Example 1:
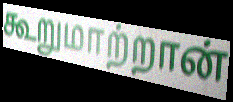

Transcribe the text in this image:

கூறுமாற்றான்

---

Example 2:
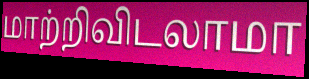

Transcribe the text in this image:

மாற்றிவிடலாமா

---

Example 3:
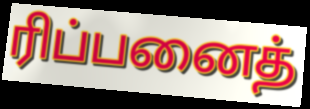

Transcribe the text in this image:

ரிப்பனைத்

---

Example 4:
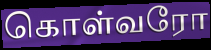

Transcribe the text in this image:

கொள்வரோ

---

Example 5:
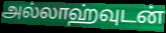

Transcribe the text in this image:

அல்லாஹ்வுடன்